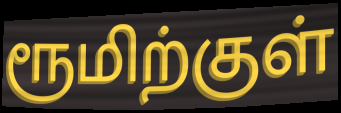
ரூமிற்குள்